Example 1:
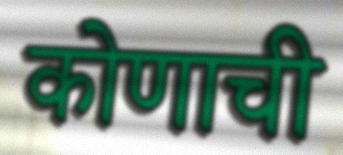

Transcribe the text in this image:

कोणाची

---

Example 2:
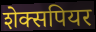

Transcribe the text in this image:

शेक्सपियर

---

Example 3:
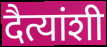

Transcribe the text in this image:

दैत्यांशी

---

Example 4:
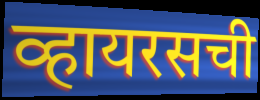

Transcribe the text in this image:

व्हायरसची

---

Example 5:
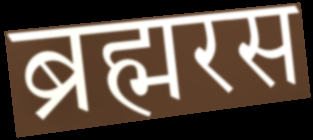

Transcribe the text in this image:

ब्रह्मरस